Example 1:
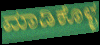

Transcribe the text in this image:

ಮಾಡಿಕೊಳ್ಳ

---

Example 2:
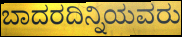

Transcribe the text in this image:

ಬಾದರದಿನ್ನಿಯವರು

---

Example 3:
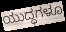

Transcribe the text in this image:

ಯುದ್ಧಗಳೂ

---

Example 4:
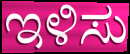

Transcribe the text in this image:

ಇಳಿಸು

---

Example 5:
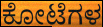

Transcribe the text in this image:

ಕೋಟೆಗಳ